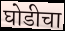
घोडीचा